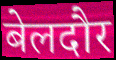
बेलदौर